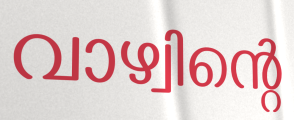
വാഴ്വിന്റെ